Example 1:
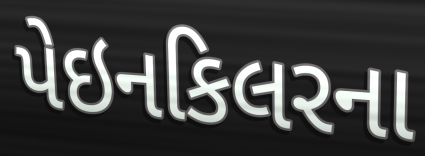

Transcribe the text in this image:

પેઇનકિલરના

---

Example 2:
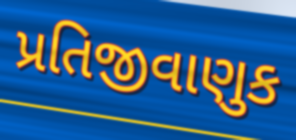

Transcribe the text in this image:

પ્રતિજીવાણુક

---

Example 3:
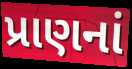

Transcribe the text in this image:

પ્રાણનાં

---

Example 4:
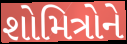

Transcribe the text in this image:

શોમિત્રોને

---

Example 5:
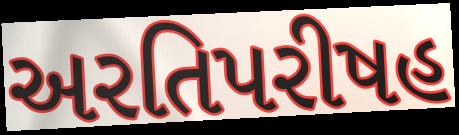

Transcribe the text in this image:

અરતિપરીષહ